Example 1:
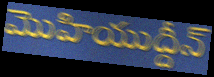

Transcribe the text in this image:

మొహియుద్దీన్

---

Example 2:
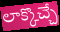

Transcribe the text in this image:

లాక్కొచ్చే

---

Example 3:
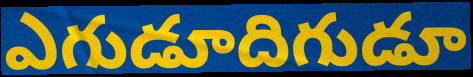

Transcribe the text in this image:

ఎగుడూదిగుడూ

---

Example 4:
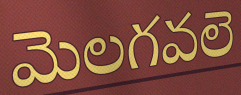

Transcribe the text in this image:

మెలగవలె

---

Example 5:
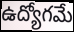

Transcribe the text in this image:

ఉద్యోగమే